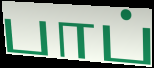
பாப்